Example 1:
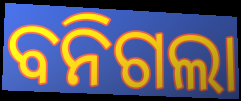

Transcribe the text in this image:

ବନିଗଲା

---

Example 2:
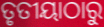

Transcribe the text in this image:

ତୃତୀୟାଠାରୁ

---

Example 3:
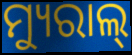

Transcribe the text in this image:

ମ୍ୟୁରାଲ୍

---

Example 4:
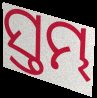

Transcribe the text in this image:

ସ୍ତମ୍ଭ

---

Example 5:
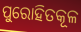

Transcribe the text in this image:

ପୁରୋହିତକୂଳ